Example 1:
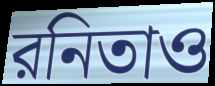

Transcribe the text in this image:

রনিতাও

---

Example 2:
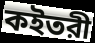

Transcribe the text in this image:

কইতরী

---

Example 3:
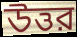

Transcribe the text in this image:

উত্তর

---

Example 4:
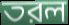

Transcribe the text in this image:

তরল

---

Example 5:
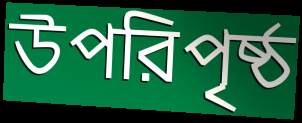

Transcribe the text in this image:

উপরিপৃষ্ঠ